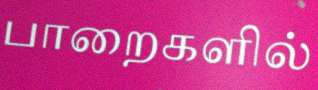
பாறைகளில்